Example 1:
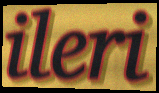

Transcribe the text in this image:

ileri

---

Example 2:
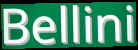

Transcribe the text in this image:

Bellini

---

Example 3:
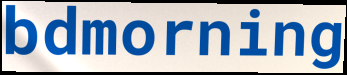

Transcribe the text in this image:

bdmorning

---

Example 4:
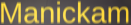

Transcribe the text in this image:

Manickam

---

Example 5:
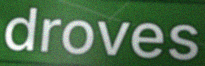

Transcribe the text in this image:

droves